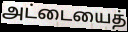
அட்டையைத்